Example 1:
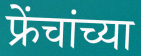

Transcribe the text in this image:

फ्रेंचांच्या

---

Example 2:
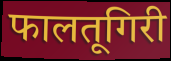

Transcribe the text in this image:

फालतूगिरी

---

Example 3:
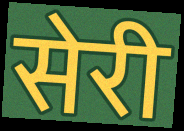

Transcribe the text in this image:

सेरी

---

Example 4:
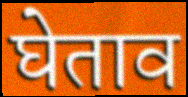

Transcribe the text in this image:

घेताव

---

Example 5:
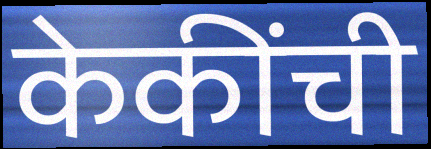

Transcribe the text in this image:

केकींची